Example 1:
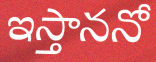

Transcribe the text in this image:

ఇస్తాననో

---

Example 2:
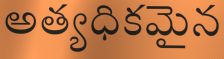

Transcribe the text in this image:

అత్యధికమైన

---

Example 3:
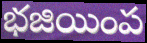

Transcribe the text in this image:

భజియింప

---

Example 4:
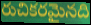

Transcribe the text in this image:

రుచికరమైనది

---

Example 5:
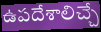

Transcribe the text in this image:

ఉపదేశాలిచ్చే